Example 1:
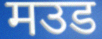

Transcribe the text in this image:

मउड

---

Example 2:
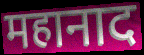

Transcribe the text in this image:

महानाद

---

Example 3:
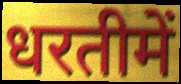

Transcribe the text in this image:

धरतीमें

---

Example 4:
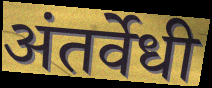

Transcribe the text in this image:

अंतर्वेधी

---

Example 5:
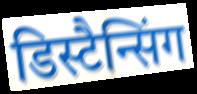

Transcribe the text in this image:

डिस्टैन्सिंग